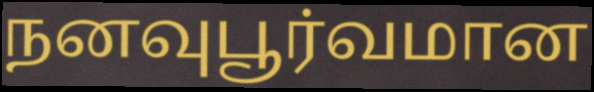
நனவுபூர்வமான